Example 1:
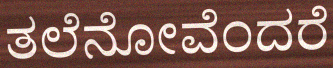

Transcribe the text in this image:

ತಲೆನೋವೆಂದರೆ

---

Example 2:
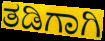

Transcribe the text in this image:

ತಡಿಗಾಗಿ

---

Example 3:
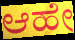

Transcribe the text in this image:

ಆಹೇ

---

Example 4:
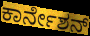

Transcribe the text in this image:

ಕಾರ್ನೇಶನ್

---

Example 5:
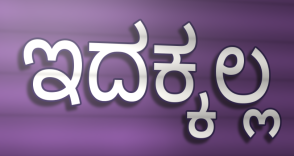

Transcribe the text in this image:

ಇದಕ್ಕಲ್ಲ